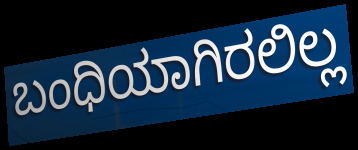
ಬಂಧಿಯಾಗಿರಲಿಲ್ಲ